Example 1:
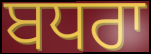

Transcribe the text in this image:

ਬਧਰਾ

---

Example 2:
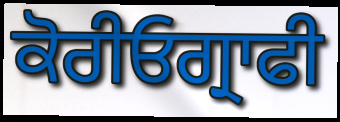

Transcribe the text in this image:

ਕੋਰੀਓਗ੍ਰਾਫੀ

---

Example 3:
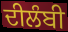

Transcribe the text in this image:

ਦੀਲੰਬੀ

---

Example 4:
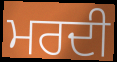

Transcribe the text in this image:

ਮਰਦੀ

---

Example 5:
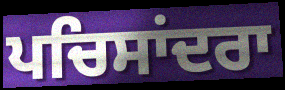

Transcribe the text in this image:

ਪਚਿਸਾਂਦਰਾ